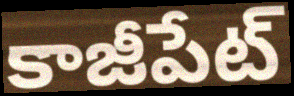
కాజీపేట్